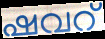
ഷവറ്